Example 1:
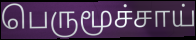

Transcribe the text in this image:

பெருமூச்சாய்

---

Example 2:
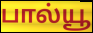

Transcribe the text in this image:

பால்யூ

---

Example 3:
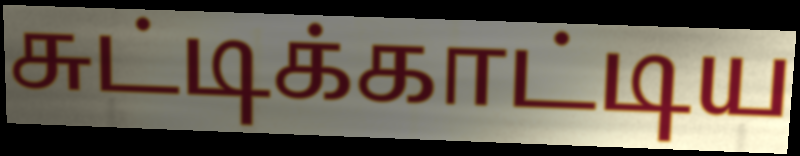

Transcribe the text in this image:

சுட்டிக்காட்டிய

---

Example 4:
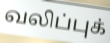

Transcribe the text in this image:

வலிப்புக்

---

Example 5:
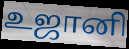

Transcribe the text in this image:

உஜானி